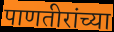
पाणतीरांच्या